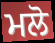
ਮਲੋ